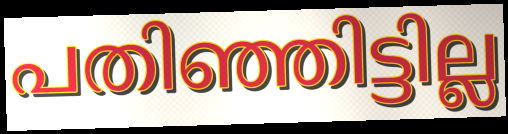
പതിഞ്ഞിട്ടില്ല